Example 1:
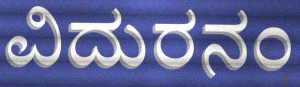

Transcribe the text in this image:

ವಿದುರನಂ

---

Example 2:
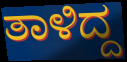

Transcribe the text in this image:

ತಾಳಿದ್ದ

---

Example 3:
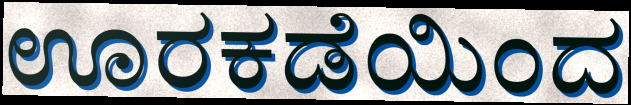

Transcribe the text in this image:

ಊರಕಡೆಯಿಂದ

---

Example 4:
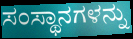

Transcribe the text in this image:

ಸಂಸ್ಥಾನಗಳನ್ನು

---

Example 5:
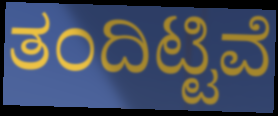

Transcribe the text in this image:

ತಂದಿಟ್ಟಿವೆ